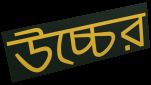
উচ্চের